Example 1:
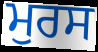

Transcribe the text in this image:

ਮੁਰਸ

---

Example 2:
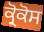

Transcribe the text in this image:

ਕ੍ਰੋਕੋਸ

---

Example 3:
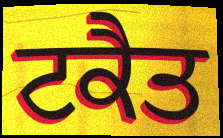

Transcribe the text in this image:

ਟਕੈਤ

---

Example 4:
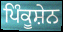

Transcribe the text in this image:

ਪਿੰਕੂਸ਼ੇਨ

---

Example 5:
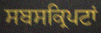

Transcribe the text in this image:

ਸਬਸਕ੍ਰਿਪਟਾਂ